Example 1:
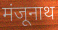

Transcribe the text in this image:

मंजूनाथ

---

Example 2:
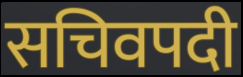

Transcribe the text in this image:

सचिवपदी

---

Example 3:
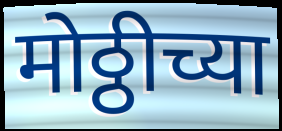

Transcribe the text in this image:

मोठ्ठीच्या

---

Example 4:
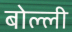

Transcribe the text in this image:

बोल्ली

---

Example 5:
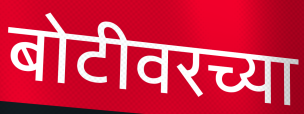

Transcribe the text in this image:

बोटीवरच्या